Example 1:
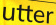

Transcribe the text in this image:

utter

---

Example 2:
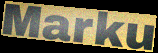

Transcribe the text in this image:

Marku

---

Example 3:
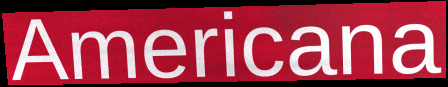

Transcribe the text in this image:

Americana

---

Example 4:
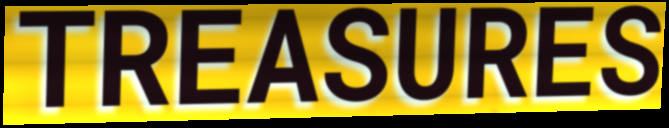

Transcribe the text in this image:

TREASURES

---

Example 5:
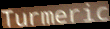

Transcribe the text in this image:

Turmeric